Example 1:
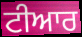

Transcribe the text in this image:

ਟੀਆਰ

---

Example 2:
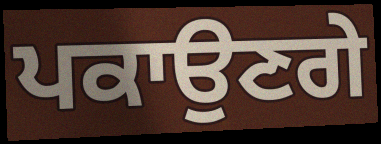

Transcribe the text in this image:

ਪਕਾਉਣਗੇ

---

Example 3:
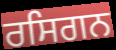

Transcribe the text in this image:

ਰਸਿਗਨ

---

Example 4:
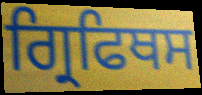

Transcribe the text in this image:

ਗ੍ਰਿਫਿਥਸ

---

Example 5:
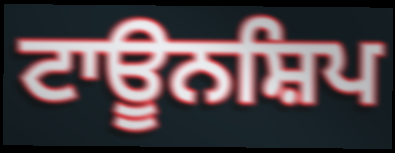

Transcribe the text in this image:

ਟਾਊਨਸ਼ਿਪ